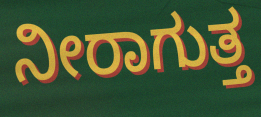
ನೀರಾಗುತ್ತ